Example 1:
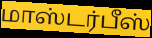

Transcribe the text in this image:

மாஸ்டர்பீஸ்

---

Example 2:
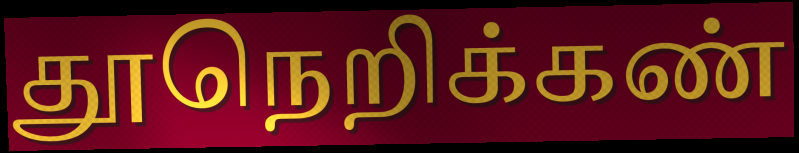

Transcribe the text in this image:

தூநெறிக்கண்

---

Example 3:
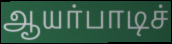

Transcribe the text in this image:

ஆயர்பாடிச்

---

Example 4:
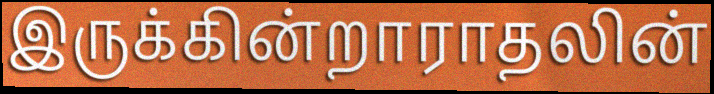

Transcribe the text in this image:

இருக்கின்றாராதலின்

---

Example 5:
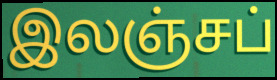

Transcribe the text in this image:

இலஞ்சப்